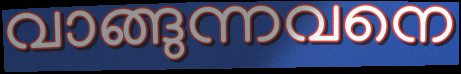
വാങ്ങുന്നവനെ